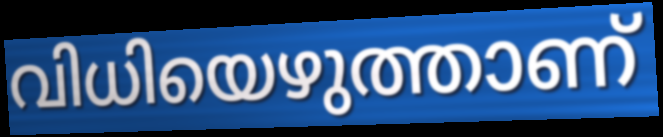
വിധിയെഴുത്താണ്